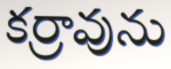
కర్రావును